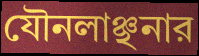
যৌনলাঞ্ছনার